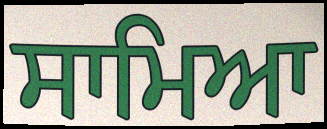
ਸਾਮਿਆ